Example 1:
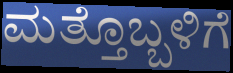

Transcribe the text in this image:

ಮತ್ತೊಬ್ಬಳಿಗೆ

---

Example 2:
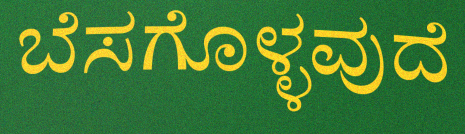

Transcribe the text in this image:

ಬೆಸಗೊಳ್ಳವುದೆ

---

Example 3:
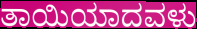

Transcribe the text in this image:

ತಾಯಿಯಾದವಳು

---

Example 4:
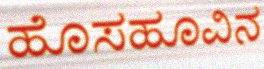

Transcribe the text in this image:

ಹೊಸಹೂವಿನ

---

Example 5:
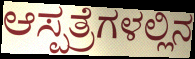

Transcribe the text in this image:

ಆಸ್ಪತ್ರೆಗಳಲ್ಲಿನ